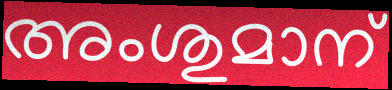
അംശുമാന്